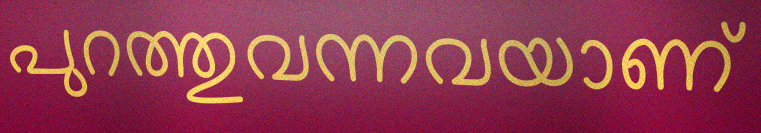
പുറത്തുവന്നവയാണ്